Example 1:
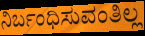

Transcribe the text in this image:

ನಿರ್ಬಂಧಿಸುವಂತಿಲ್ಲ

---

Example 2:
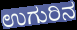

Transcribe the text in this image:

ಉಗುರಿನ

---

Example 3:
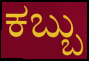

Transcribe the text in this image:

ಕಬ್ಬು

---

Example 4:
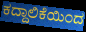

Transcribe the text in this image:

ಕದ್ದಾಲಿಕೆಯಿಂದ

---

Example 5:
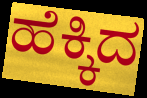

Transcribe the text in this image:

ಹೆಕ್ಕಿದ